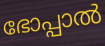
ഭോപ്പാൽ